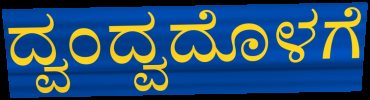
ದ್ವಂದ್ವದೊಳಗೆ